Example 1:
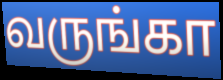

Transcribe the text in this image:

வருங்கா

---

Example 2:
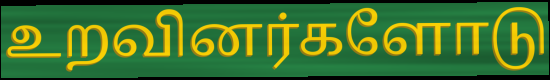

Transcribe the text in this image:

உறவினர்களோடு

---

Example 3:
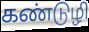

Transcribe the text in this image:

கண்டுழி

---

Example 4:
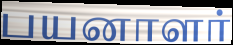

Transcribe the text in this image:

பயனாளர்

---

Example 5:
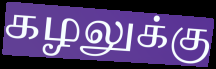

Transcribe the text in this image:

கழலுக்கு